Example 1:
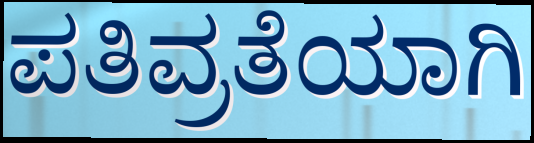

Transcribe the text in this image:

ಪತಿವ್ರತೆಯಾಗಿ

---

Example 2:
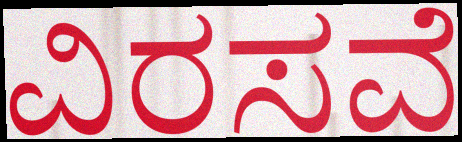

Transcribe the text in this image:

ವಿರಸವೆ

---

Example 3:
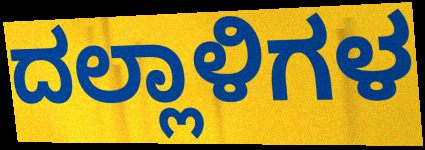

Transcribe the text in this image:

ದಲ್ಲಾಳಿಗಳ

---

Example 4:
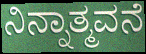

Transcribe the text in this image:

ನಿನ್ನಾತ್ಮವನೆ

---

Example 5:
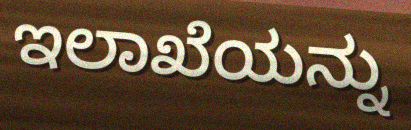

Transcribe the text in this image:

ಇಲಾಖೆಯನ್ನು